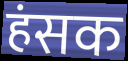
हंसक